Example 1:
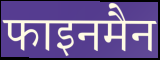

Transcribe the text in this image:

फाइनमैन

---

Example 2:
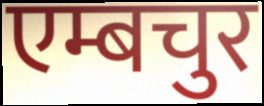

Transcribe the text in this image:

एम्बचुर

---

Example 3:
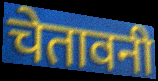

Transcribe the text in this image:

चेतावनी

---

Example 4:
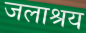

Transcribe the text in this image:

जलाश्रय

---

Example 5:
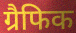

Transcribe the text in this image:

ग्रैफिक